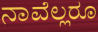
ನಾವೆಲ್ಲರೂ